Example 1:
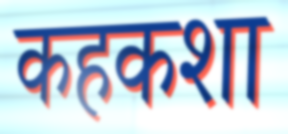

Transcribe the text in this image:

कहकशा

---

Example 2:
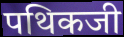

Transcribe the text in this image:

पथिकजी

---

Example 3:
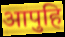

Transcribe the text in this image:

आपुहि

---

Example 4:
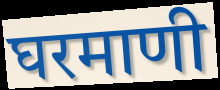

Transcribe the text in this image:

घरमाणी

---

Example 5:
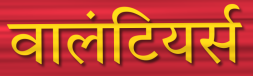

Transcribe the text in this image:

वालंटियर्स